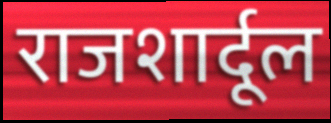
राजशार्दूल